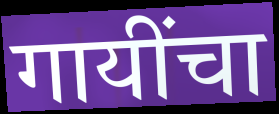
गायींचा